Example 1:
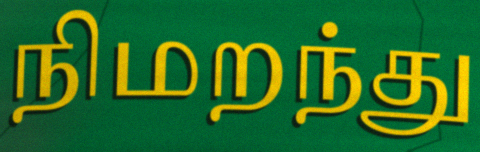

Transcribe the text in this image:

நிமறந்து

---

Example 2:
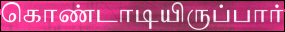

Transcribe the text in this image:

கொண்டாடியிருப்பார்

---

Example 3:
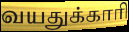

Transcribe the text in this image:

வயதுக்காரி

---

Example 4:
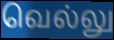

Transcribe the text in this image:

வெல்லு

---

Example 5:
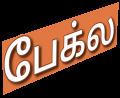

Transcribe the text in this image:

பேக்ல